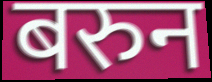
बरुन